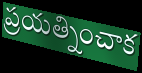
ప్రయత్నించాక